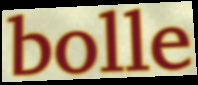
bolle